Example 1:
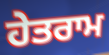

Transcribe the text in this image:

ਹੇਤਰਾਮ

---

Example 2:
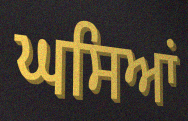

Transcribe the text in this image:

ਘਸਿਆਂ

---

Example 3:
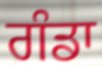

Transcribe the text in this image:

ਗੰਡਾ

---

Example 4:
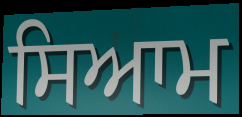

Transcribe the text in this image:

ਸਿਆਮ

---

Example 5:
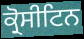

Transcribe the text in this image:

ਕ੍ਰੋਸੀਟਿਨ